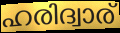
ഹരിദ്വാര്